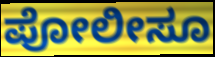
ಪೋಲೀಸೂ